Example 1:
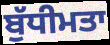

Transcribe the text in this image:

ਬੁੱਧੀਮਤਾ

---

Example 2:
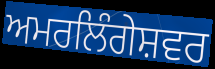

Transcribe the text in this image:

ਅਮਰਲਿੰਗੇਸ਼ਵਰ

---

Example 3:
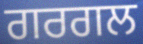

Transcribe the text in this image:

ਗਰਗਲ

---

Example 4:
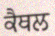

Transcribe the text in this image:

ਕੈਥਲ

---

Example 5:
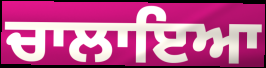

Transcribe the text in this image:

ਚਾਲਾਇਆ